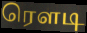
ரௌடி